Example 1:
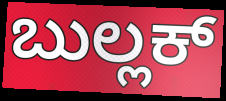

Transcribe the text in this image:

ಬುಲ್ಲಕ್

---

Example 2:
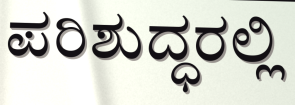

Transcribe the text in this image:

ಪರಿಶುದ್ಧರಲ್ಲಿ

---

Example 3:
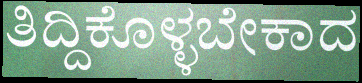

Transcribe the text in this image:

ತಿದ್ದಿಕೊಳ್ಳಬೇಕಾದ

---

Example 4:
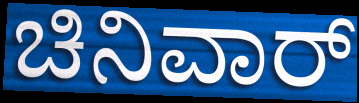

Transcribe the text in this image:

ಚಿನಿವಾರ್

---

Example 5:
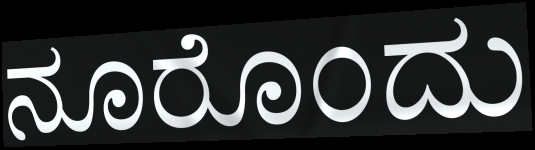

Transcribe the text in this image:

ನೂರೊಂದು